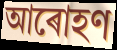
আৰোহণ